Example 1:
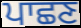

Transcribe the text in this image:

ਪਾਛਣ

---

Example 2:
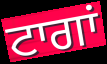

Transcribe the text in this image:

ਟਾਗਾਂ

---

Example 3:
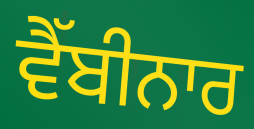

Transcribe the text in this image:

ਵੈੱਬੀਨਾਰ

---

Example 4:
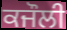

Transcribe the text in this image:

ਕਜੌਲੀ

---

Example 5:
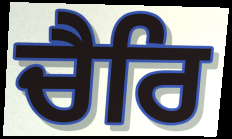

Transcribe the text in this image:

ਚੈਰਿ